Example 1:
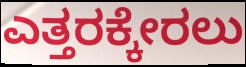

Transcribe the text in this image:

ಎತ್ತರಕ್ಕೇರಲು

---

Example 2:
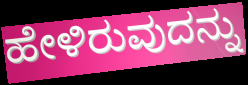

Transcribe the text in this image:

ಹೇಳಿರುವುದನ್ನು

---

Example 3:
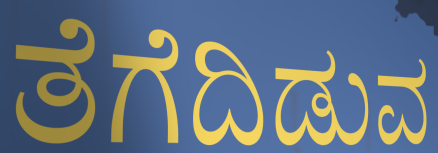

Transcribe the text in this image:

ತೆಗೆದಿಡುವ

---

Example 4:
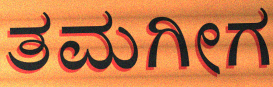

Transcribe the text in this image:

ತಮಗೀಗ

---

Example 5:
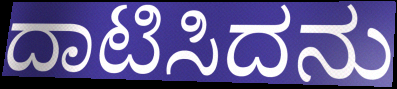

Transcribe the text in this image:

ದಾಟಿಸಿದನು